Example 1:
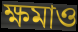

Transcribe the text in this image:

ক্ষমাও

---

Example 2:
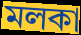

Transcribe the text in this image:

মলকা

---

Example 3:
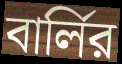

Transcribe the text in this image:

বার্লির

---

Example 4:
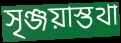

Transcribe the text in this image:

সৃঞ্জয়াস্তথা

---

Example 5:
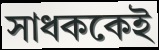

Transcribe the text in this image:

সাধককেই